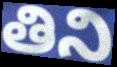
తిని